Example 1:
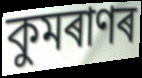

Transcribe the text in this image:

কুমৰাণৰ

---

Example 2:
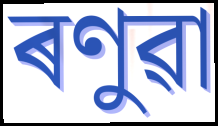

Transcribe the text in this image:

ৰণুৱা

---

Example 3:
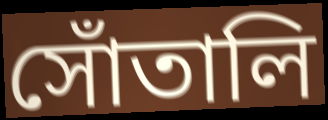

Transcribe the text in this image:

সোঁতালি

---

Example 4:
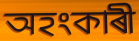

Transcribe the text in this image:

অহংকাৰী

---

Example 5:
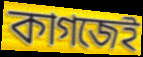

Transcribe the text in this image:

কাগজেই